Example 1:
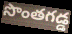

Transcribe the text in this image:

సొంతగడ్డ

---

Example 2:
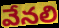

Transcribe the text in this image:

వేనలి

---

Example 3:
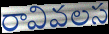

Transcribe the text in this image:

రావివలస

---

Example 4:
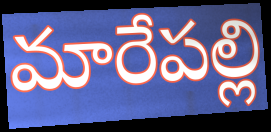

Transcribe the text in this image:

మారేపల్లి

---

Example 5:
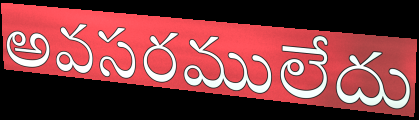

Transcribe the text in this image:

అవసరములేదు